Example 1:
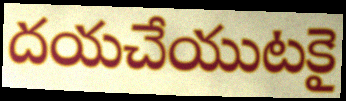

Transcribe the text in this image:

దయచేయుటకై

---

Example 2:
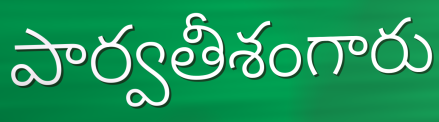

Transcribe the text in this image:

పార్వతీశంగారు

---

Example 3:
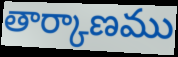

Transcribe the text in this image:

తార్కాణము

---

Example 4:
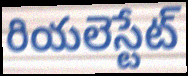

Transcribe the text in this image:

రియలెస్టేట్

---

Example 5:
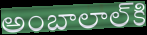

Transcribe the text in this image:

అంబాలాల్‌కి